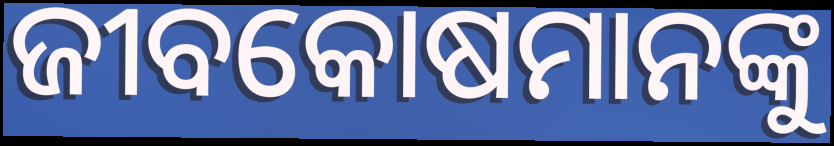
ଜୀବକୋଷମାନଙ୍କୁ